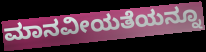
ಮಾನವೀಯತೆಯನ್ನೂ